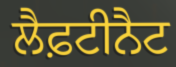
ਲੈਫ਼ਟੀਨੈਟ